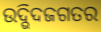
ଉଦ୍ଭିଦଜଗତର